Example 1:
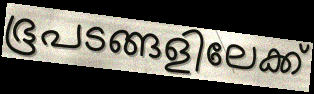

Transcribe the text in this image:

ഭൂപടങ്ങളിലേക്ക്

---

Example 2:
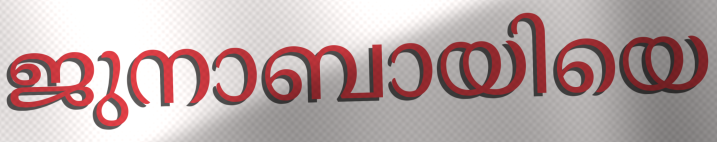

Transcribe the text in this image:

ജുനാബായിയെ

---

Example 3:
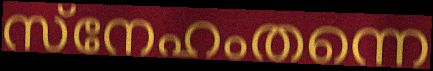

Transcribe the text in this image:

സ്‌നേഹംതന്നെ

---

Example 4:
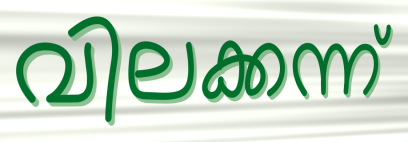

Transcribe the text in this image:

വിലക്കന്ന്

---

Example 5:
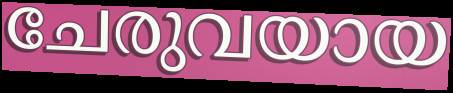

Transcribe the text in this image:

ചേരുവയായ